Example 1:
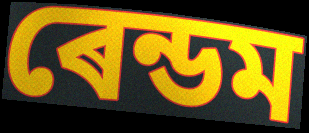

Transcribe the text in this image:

ৰেন্ডম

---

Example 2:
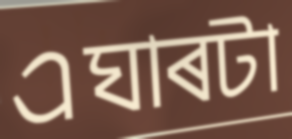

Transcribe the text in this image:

এঘাৰটা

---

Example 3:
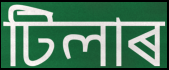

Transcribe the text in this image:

টিলাৰ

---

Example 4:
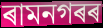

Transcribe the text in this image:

ৰামনগৰৰ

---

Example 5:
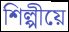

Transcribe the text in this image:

শিল্পীয়ে